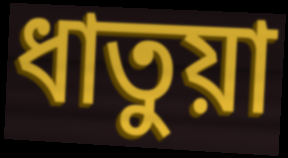
ধাতুয়া